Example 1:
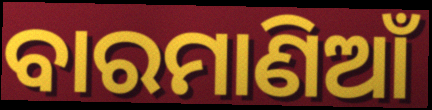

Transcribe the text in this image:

ବାରମାଣିଆଁ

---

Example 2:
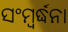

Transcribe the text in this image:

ସଂମ୍ବର୍ଦ୍ଧନା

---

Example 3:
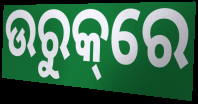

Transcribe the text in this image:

ଉରୁକ୍‌ରେ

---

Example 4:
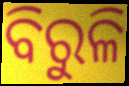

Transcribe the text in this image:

ବିରୁଳି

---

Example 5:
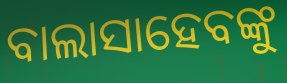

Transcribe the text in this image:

ବାଲାସାହେବଙ୍କୁ